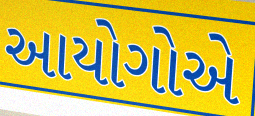
આયોગોએ